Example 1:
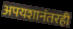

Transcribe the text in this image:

अपयशानंतरही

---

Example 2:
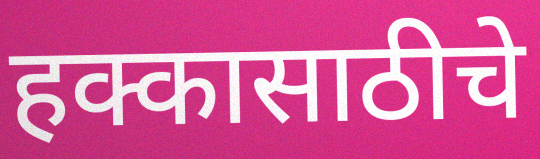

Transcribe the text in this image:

हक्कासाठीचे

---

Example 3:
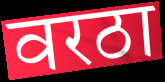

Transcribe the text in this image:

वरठा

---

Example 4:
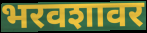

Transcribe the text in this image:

भरवशावर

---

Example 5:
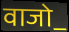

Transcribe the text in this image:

वाजो॒